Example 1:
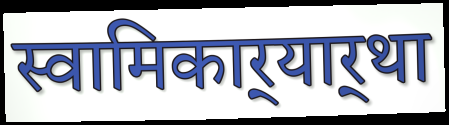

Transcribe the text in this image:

स्वामिकार्यार्था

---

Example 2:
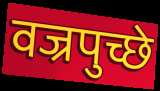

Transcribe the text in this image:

वज्रपुच्छे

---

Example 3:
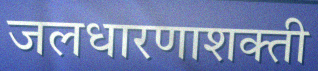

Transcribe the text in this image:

जलधारणाशक्ती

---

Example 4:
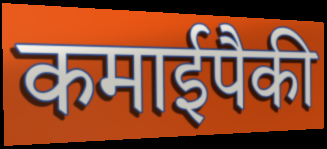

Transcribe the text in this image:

कमाईपैकी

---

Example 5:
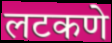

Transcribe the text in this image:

लटकणे